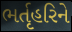
ભર્તૃહરિને